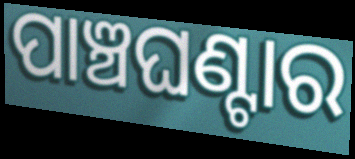
ପାଞ୍ଚଘଣ୍ଟାର